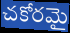
చకోరమై